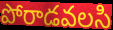
పోరాడవలసి